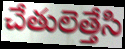
చేతులెత్తేసి